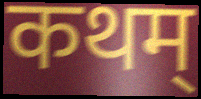
कथम्